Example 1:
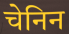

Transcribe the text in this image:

चेनिन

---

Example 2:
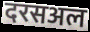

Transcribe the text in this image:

दरसअल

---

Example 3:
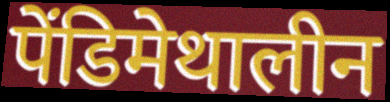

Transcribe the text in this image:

पेंडिमेथालीन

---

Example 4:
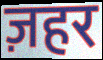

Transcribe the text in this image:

ज़हर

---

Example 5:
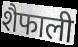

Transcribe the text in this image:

शैफाली